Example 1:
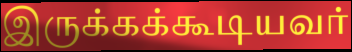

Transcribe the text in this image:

இருக்கக்கூடியவர்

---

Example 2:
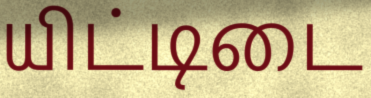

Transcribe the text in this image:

யிட்டிடை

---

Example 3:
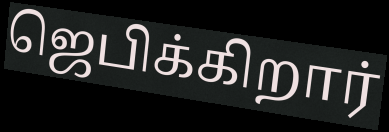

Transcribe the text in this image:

ஜெபிக்கிறார்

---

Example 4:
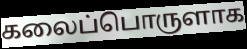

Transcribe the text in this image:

கலைப்பொருளாக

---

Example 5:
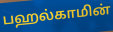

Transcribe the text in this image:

பஹல்காமின்